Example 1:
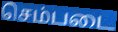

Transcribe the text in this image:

செம்படை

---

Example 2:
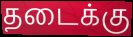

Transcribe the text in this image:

தடைக்கு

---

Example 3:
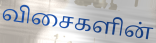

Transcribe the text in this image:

விசைகளின்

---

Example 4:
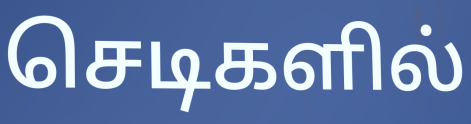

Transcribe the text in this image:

செடிகளில்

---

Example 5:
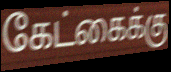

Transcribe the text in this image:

கேட்கைக்கு